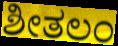
ಶೀತಲಂ